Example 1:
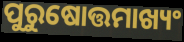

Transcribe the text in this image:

ପୁରୁଷୋତ୍ତମାଖ୍ୟଂ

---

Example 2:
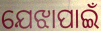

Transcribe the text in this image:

ଯେଝାପାଇଁ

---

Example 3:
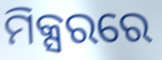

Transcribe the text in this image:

ମିକ୍ସରରେ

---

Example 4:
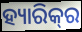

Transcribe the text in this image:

ହ୍ୟାରିକ୍‌ର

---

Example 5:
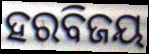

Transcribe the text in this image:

ହରବିଜୟ